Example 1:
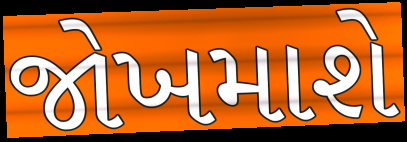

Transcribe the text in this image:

જોખમાશે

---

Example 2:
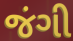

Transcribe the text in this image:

જંગી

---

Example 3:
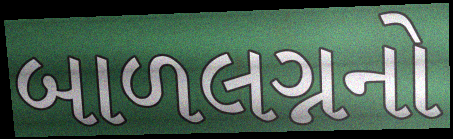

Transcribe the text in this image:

બાળલગ્નનો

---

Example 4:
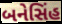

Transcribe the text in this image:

બનેસિંહ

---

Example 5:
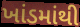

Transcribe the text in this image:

ખાંડમાંથી